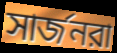
সার্জনরা